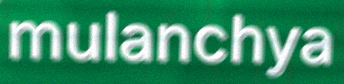
mulanchya